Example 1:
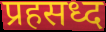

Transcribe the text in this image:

प्रहसध्द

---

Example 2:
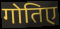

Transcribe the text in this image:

गोतिए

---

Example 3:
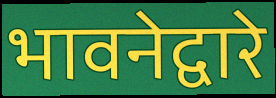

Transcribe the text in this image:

भावनेद्वारे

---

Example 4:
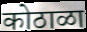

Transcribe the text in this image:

कोठाळा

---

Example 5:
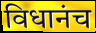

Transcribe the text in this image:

विधानंच